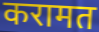
करामत